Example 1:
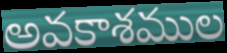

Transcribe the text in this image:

అవకాశముల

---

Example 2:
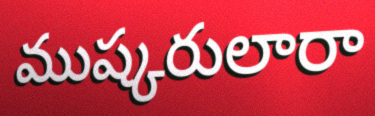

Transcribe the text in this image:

ముష్కరులారా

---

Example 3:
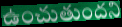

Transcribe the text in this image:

ఉంచుతుందని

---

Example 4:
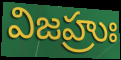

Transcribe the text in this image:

విజహ్రుః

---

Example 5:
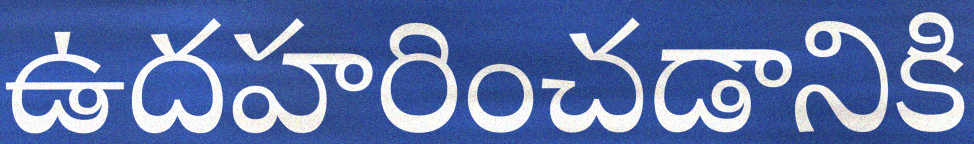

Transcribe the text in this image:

ఉదహరించడానికి